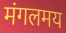
मंगलमय